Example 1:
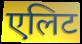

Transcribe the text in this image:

एलिट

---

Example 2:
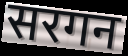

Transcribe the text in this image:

सरगन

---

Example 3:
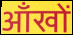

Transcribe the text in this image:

आंँखों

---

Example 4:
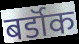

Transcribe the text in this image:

बर्डॉक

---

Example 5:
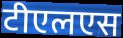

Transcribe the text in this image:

टीएलएस